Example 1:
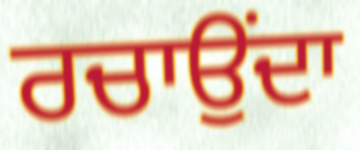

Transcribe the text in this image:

ਰਚਾਉਂਦਾ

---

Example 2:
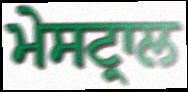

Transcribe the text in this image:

ਮੇਸਟ੍ਰਾਲ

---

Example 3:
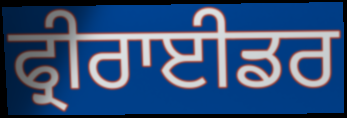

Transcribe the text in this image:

ਫ੍ਰੀਰਾਈਡਰ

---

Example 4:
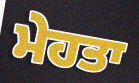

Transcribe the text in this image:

ਮੇਹਤਾ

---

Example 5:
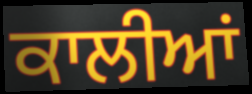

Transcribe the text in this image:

ਕਾਲੀਆਂ